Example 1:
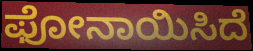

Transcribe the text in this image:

ಫೋನಾಯಿಸಿದೆ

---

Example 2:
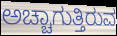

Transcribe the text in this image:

ಅಚ್ಚಾಗುತ್ತಿರುವ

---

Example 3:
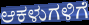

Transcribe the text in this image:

ಆಕಳುಗಳಿಗೆ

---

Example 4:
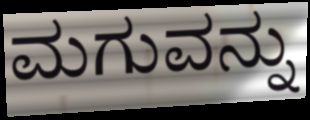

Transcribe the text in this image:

ಮಗುವನ್ನು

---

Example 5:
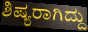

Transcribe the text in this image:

ಶಿಷ್ಯರಾಗಿದ್ದು